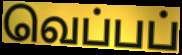
வெப்பப்